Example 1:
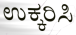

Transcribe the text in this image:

ಉಕ್ಕರಿಸಿ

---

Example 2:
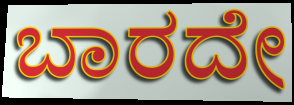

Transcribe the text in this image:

ಬಾರದೇ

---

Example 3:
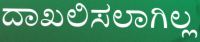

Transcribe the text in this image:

ದಾಖಲಿಸಲಾಗಿಲ್ಲ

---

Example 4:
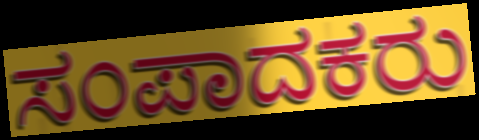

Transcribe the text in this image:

ಸಂಪಾದಕರು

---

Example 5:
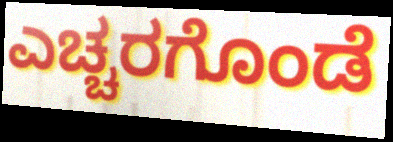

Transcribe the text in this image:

ಎಚ್ಚರಗೊಂಡೆ